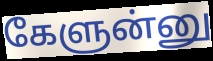
கேளுன்னு